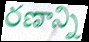
రణాన్ని